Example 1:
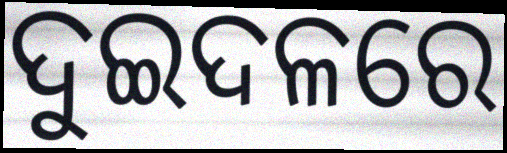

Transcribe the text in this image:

ଦୁଇଦଳରେ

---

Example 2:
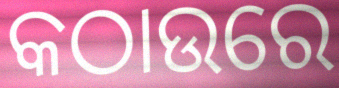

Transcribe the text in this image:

କଠାଉରେ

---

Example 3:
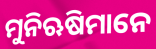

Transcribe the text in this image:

ମୁନିଋଷିମାନେ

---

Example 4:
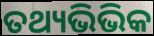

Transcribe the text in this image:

ତଥ୍ୟଭିଭିକ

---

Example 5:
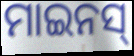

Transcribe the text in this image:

ମାଇନସ୍